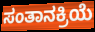
ಸಂತಾನಕ್ರಿಯೆ